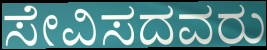
ಸೇವಿಸದವರು